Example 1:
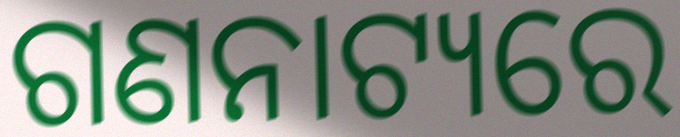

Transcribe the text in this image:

ଗଣନାଟ୍ୟରେ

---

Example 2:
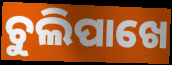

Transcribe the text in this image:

ଚୁଲିପାଖେ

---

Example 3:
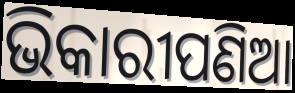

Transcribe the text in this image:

ଭିକାରୀପଣିଆ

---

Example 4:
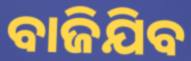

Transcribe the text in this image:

ବାଜିଯିବ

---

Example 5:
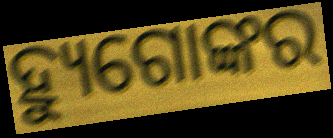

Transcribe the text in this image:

ହ୍ୟୁଗୋଙ୍କର